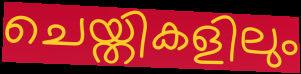
ചെയ്തികളിലും